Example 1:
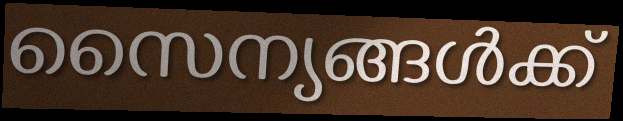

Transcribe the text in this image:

സൈന്യങ്ങൾക്ക്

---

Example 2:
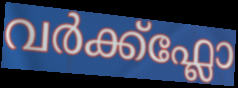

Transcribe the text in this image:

വർക്ക്ഫ്ലോ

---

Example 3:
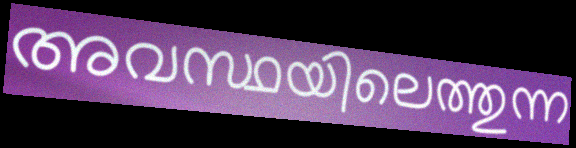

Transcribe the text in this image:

അവസ്ഥയിലെത്തുന്ന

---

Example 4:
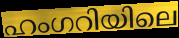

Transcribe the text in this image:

ഹംഗറിയിലെ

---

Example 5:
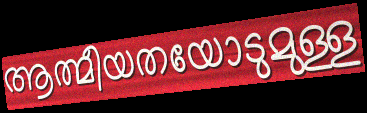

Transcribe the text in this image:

ആത്മീയതയോടുമുള്ള